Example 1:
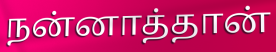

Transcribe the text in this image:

நன்னாத்தான்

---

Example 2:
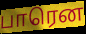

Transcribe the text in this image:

பாரென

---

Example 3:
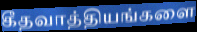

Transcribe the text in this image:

கீதவாத்தியங்களை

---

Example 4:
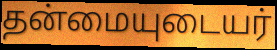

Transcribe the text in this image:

தன்மையுடையர்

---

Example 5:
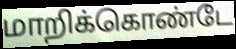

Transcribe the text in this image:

மாறிக்கொண்டே